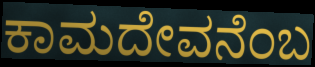
ಕಾಮದೇವನೆಂಬ